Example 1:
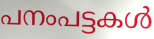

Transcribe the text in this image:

പനംപട്ടകൾ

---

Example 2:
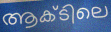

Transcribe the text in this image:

ആക്ടിലെ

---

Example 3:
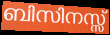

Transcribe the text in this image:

ബിസിനസ്സ്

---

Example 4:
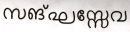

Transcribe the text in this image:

സങ്ഘസ്സേവ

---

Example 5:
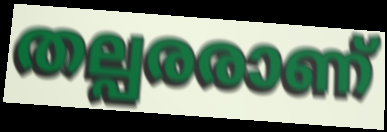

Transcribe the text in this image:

തല്പരരാണ്